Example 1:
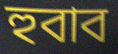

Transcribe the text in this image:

হুবাব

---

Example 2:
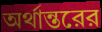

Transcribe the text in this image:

অর্থান্তরের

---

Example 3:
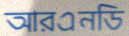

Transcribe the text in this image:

আরএনডি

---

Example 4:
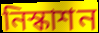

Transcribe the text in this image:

নিস্কাশন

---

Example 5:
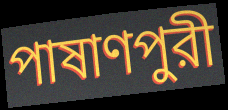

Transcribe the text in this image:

পাষাণপুরী